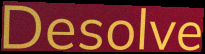
Desolve